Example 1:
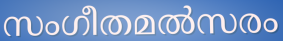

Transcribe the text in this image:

സംഗീതമൽസരം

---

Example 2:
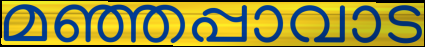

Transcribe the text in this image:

മഞ്ഞപ്പാവാട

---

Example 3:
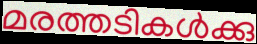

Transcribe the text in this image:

മരത്തടികൾക്കു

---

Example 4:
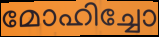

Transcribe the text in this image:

മോഹിച്ചോ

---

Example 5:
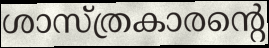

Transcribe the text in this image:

ശാസ്ത്രകാരന്റെ